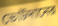
ভোটদানের